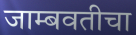
जाम्बवतीचा